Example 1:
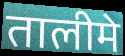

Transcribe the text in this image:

तालीमे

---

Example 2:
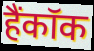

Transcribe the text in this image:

हैंकॉक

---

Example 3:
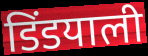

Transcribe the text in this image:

डिंडयाली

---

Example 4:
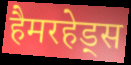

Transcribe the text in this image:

हैमरहेड्स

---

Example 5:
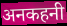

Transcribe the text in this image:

अनकहनी